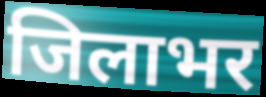
जिलाभर